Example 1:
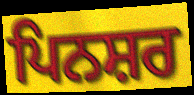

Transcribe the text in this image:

ਪਿਨਸ਼ਰ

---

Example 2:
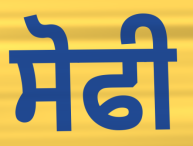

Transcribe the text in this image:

ਸੋਫੀ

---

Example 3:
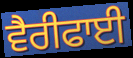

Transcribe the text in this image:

ਵੈਰੀਫਾਈ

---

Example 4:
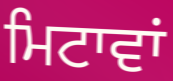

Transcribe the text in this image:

ਮਿਟਾਵਾਂ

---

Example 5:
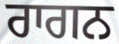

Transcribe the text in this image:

ਰਾਗਨ